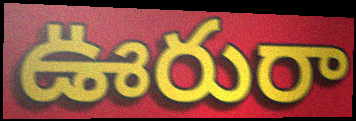
ఊరురా